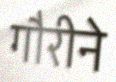
गौरीने